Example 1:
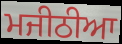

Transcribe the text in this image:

ਮਜੀਠੀਆ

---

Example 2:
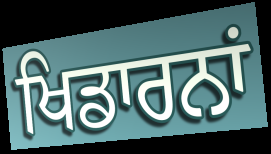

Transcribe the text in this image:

ਖਿਡਾਰਨਾਂ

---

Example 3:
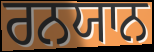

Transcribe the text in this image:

ਰਨਯਾਨ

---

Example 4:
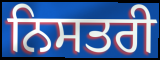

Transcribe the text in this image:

ਨਿਸਤਰੀ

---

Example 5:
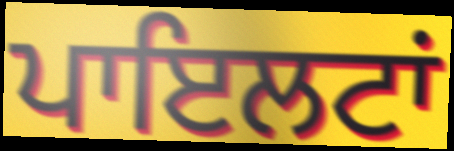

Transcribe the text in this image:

ਪਾਇਲਟਾਂ